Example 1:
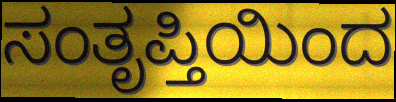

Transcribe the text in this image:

ಸಂತೃಪ್ತಿಯಿಂದ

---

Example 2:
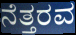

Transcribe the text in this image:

ನೆತ್ತರವ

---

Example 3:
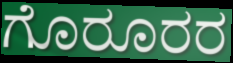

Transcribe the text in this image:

ಗೊರೂರರ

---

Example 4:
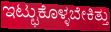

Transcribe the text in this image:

ಇಟ್ಟುಕೊಳ್ಳಬೇಕಿತ್ತು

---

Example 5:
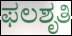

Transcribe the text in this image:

ಫಲಶೃತಿ